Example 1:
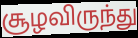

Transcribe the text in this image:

சூழவிருந்து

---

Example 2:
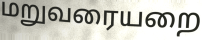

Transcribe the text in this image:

மறுவரையறை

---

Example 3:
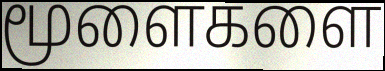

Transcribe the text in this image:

மூளைகளை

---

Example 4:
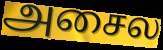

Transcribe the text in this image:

அசைல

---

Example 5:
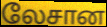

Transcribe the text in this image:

லேசான